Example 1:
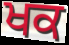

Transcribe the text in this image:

ਖਕ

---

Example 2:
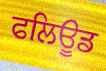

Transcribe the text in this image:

ਫਲਿਊਡ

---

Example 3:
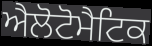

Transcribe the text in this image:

ਐਲੋਟੋਮੈਟਿਕ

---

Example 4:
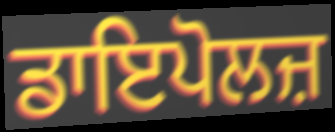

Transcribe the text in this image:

ਡਾਇਪੋਲਜ਼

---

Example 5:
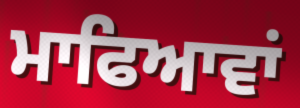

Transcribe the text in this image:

ਮਾਫਿਆਵਾਂ